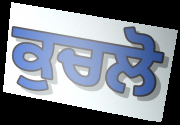
ਕੁਚਲੋ